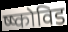
ष्ष्कोविड